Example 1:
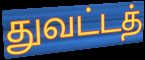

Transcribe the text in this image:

துவட்டத்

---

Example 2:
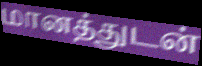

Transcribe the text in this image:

மானத்துடன்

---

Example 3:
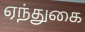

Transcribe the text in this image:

ஏந்துகை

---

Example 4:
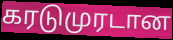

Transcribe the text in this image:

கரடுமுரடான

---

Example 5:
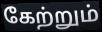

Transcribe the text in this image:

கேற்றும்